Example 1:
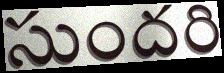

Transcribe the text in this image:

సుందరి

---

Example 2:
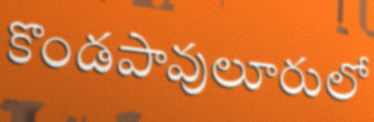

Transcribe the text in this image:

కొండపావులూరులో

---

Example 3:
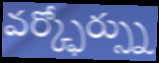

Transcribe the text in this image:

వర్క్ఫోర్స్ను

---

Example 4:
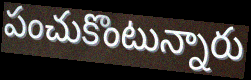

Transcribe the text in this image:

పంచుకొంటున్నారు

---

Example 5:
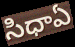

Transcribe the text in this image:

సిధాఏ